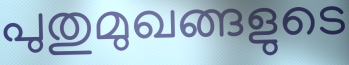
പുതുമുഖങ്ങളുടെ